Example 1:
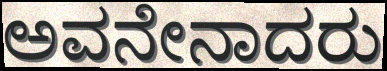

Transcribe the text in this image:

ಅವನೇನಾದರು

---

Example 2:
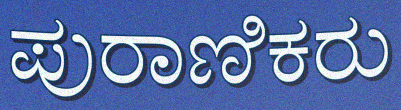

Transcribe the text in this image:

ಪುರಾಣಿಕರು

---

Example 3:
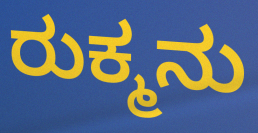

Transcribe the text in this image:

ರುಕ್ಮನು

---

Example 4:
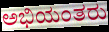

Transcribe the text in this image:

ಅಭಿಯಂತರು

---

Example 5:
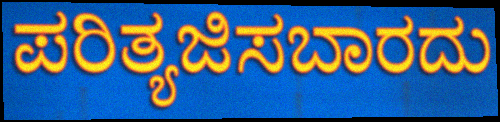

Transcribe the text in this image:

ಪರಿತ್ಯಜಿಸಬಾರದು